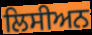
ਲਿਸੀਅਨ